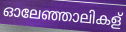
ഓലേഞ്ഞാലികള്